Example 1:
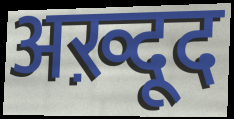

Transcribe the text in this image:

अख़्दूद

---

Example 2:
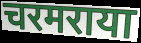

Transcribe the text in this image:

चरमराया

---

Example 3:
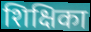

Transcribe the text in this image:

शिक्षिका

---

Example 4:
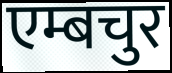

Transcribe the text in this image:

एम्बचुर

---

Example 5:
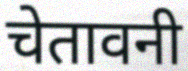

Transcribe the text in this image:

चेतावनी